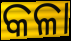
କଳା